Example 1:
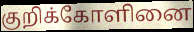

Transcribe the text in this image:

குறிக்கோளினை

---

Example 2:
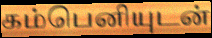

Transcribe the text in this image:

கம்பெனியுடன்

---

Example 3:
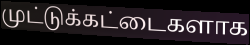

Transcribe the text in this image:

முட்டுக்கட்டைகளாக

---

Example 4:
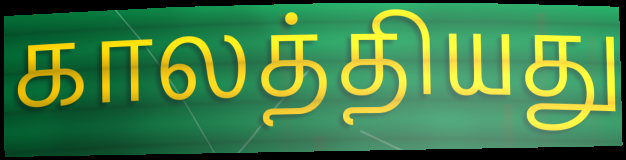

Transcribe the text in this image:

காலத்தியது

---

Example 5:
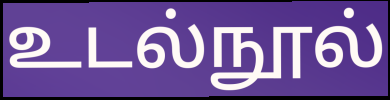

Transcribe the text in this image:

உடல்நூல்